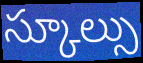
స్కూల్సు